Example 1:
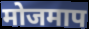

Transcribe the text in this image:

मोजमाप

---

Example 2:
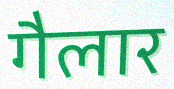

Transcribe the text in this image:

गैलार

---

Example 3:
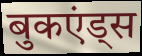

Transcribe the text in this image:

बुकएंड्स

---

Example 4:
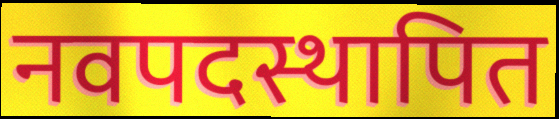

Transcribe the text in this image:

नवपदस्थापित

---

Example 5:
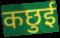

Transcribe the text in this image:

कछुई